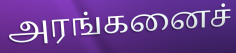
அரங்கனைச்